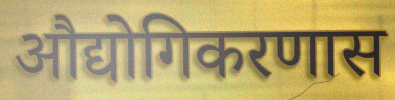
औद्योगिकरणास